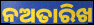
ନଅତାରିଖ